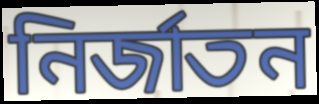
নিৰ্জাতন